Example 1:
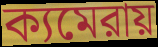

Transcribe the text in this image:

ক্যমেরায়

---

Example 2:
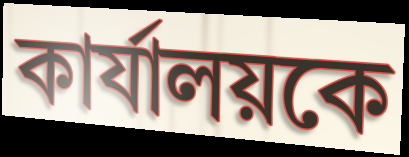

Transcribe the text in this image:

কার্যালয়কে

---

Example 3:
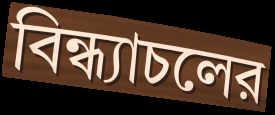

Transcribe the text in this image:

বিন্ধ্যাচলের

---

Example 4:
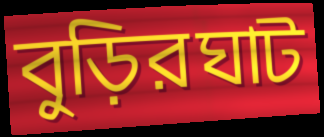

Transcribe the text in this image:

বুড়িরঘাট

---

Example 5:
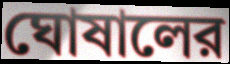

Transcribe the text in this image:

ঘোষালের